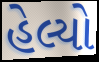
હેલ્યો